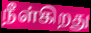
நீள்கிறது